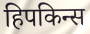
हिपकिन्स